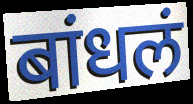
बांधलं